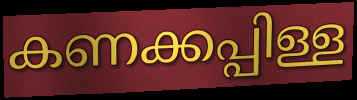
കണക്കപ്പിള്ള